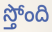
స్తోంది